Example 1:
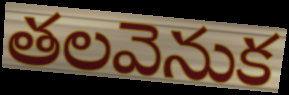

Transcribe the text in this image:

తలవెనుక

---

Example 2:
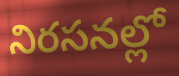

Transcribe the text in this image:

నిరసనల్లో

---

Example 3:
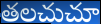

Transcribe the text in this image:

తలచుచూ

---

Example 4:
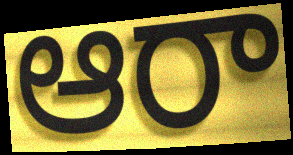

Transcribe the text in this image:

ఆరా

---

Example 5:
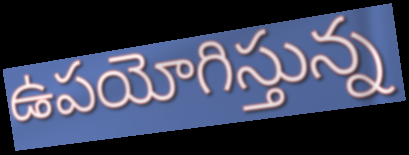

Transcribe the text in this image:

ఉపయోగిస్తున్న